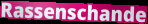
Rassenschande